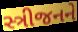
સ્ત્રીજનને